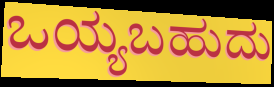
ಒಯ್ಯಬಹುದು